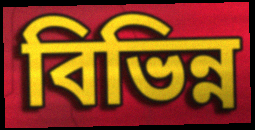
বিভিন্ন